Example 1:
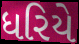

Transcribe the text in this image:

ધરિયે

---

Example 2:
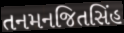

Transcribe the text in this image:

તનમનજિતસિંહ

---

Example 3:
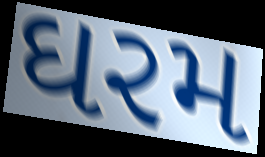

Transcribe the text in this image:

ઘરમ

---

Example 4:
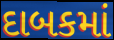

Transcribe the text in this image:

દાબકમાં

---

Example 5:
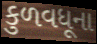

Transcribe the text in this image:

કુળવધૂના